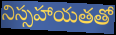
నిస్సహాయతతో